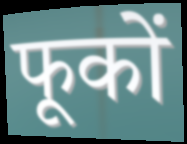
फूकों